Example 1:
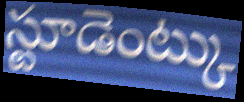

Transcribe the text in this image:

స్టూడెంట్కు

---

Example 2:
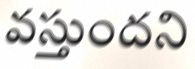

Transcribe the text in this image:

వస్తుందని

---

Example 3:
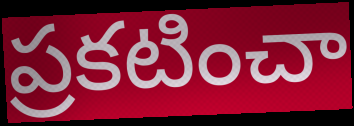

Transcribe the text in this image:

ప్రకటించా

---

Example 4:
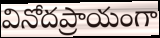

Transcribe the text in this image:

వినోదప్రాయంగా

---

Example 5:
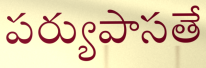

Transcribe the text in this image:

పర్యుపాసతే